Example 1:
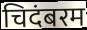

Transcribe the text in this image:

चिदंबरम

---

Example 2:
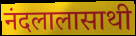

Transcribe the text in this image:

नंदलालासाथी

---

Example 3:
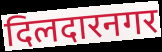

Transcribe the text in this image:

दिलदारनगर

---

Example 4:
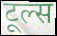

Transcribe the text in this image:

टूल्स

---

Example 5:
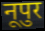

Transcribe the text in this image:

नूपुर